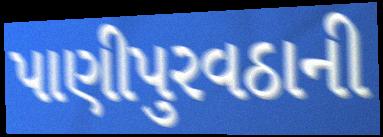
પાણીપુરવઠાની